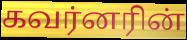
கவர்னரின்